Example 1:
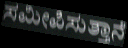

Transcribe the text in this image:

ಸಮೀಪಿಸುತ್ತಾನೆ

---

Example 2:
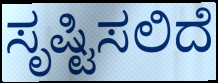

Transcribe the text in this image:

ಸೃಷ್ಟಿಸಲಿದೆ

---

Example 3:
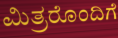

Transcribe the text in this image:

ಮಿತ್ರರೊಂದಿಗೆ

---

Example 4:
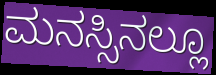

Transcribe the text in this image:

ಮನಸ್ಸಿನಲ್ಲೂ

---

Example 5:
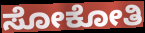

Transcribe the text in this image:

ಸೋಕೋತಿ